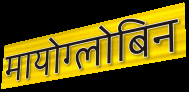
मायोग्लोबिन